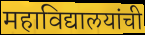
महाविद्यालयांची